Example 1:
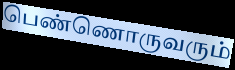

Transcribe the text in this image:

பெண்ணொருவரும்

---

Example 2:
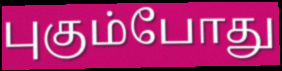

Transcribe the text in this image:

புகும்போது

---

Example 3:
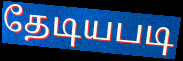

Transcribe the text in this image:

தேடியபடி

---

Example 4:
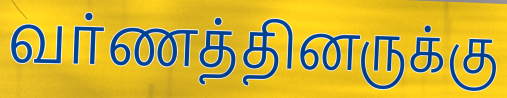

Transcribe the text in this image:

வர்ணத்தினருக்கு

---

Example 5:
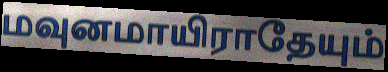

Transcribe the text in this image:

மவுனமாயிராதேயும்